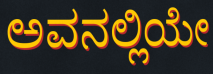
ಅವನಲ್ಲಿಯೇ